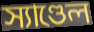
স্যাণ্ডেল